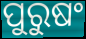
ପୁରୁଷଂ